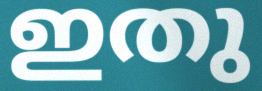
ഇതു